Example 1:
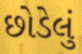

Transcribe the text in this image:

છોડેલું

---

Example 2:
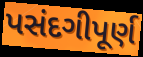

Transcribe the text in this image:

પસંદગીપૂર્ણ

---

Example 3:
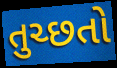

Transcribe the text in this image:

તુચ્છતો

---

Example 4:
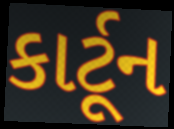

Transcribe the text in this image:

કાર્ટૂન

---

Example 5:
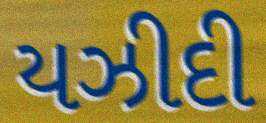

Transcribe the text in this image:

યઝીદી